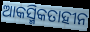
ଆକସ୍ମିକତାହୀନ